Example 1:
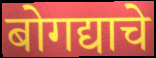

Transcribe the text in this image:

बोगद्याचे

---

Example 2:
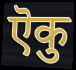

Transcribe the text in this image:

ऎकु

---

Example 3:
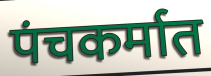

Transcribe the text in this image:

पंचकर्मात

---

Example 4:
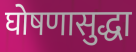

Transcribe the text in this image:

घोषणासुद्धा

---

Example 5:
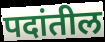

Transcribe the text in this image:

पदांतील